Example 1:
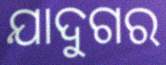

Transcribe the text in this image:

ଯାଦୁଗର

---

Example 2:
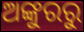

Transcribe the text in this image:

ଅଙ୍କୁରରୁ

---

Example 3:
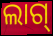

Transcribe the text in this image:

ଲାଗ୍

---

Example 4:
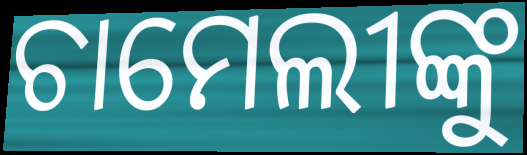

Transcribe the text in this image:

ଚାମେଲୀଙ୍କୁ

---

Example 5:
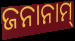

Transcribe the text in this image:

ଜନାନାମ୍